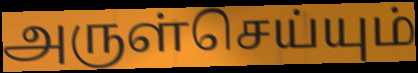
அருள்செய்யும்